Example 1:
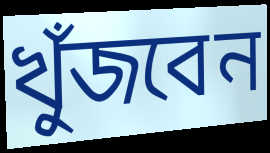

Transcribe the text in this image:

খুঁজবেন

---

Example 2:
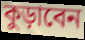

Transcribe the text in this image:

কুড়াবেন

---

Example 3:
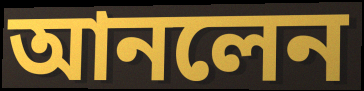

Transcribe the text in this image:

আনলেন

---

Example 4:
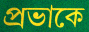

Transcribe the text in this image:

প্রভাকে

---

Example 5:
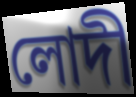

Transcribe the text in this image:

লোদী